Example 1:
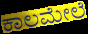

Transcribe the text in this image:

ಕಾಲಮೇಲೆ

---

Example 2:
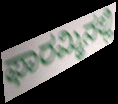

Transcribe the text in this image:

ಫಾರಮ್ಮಿನಲ್ಲಿ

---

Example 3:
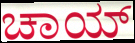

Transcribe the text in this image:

ಚಾಯ್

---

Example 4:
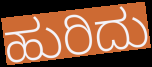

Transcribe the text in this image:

ಹುರಿದು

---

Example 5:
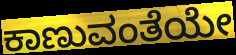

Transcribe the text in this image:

ಕಾಣುವಂತೆಯೇ